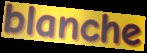
blanche